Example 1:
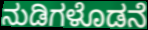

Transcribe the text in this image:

ನುಡಿಗಳೊಡನೆ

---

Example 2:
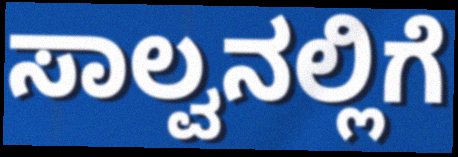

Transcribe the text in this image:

ಸಾಲ್ವನಲ್ಲಿಗೆ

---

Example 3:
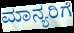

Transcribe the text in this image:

ಮಾನ್ಯರಿಗೆ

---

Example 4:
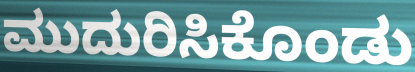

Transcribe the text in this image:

ಮುದುರಿಸಿಕೊಂಡು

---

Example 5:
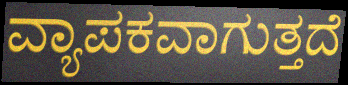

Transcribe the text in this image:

ವ್ಯಾಪಕವಾಗುತ್ತದೆ